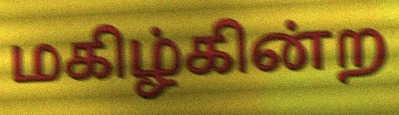
மகிழ்கின்ற